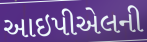
આઇપીએલની